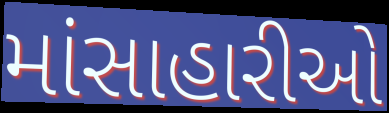
માંસાહારીઓ